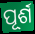
ପୂର୍ଶ